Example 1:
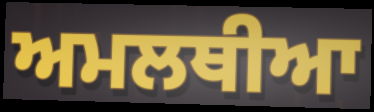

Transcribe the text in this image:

ਅਮਲਥੀਆ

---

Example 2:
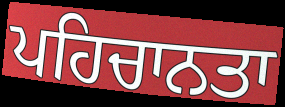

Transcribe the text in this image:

ਪਹਿਚਾਨਤਾ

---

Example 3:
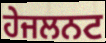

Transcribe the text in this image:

ਹੇਜਲਨਟ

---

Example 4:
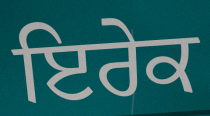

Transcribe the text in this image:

ਇਰੇਕ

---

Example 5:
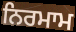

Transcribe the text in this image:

ਨਿਰਮਾਮ